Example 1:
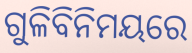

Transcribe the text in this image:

ଗୁଳିବିନିମୟରେ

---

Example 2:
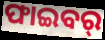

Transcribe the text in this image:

ଫାଇବର୍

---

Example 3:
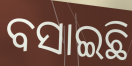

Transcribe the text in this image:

ବସାଇଛି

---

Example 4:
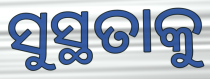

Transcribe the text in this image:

ସୁସ୍ଥତାକୁ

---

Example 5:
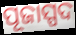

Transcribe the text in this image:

ପୂଜାସ୍ପଦ